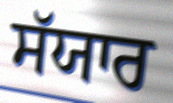
ਸੱਯਾਰ